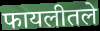
फायलीतले